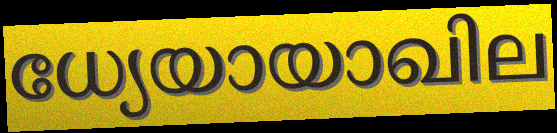
ധ്യേയായാഖില